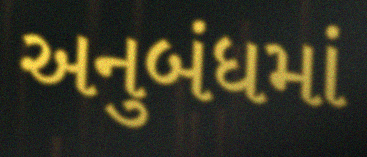
અનુબંધમાં